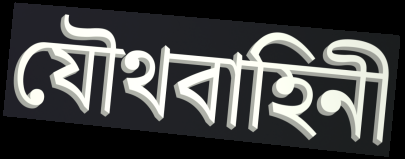
যৌথবাহিনী